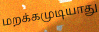
மறக்கமுடியாது